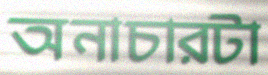
অনাচারটা